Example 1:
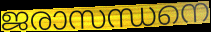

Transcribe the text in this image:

ജരാസന്ധനെ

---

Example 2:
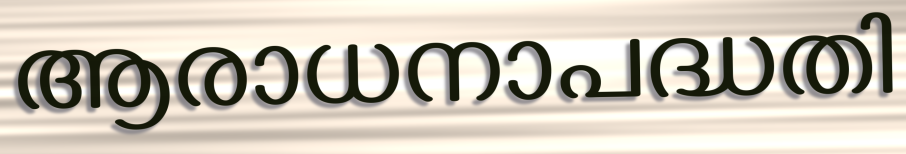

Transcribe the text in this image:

ആരാധനാപദ്ധതി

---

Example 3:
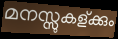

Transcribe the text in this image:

മനസ്സുകള്ക്കും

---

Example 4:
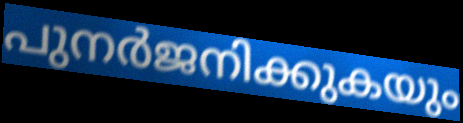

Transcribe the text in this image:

പുനർജനിക്കുകയും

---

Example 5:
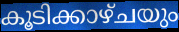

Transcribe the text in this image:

കൂടിക്കാഴ്ചയും